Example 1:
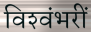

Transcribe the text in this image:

विश्वंभरीं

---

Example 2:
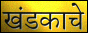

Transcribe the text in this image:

खंडकाचे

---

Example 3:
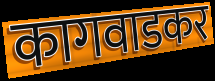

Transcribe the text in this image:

कागवाडकर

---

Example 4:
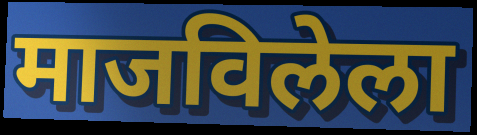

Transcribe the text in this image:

माजविलेला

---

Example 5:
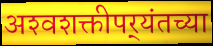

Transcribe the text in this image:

अश्वशक्तीपर्यंतच्या